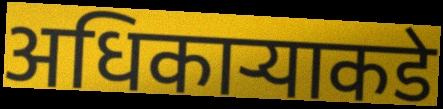
अधिकार्‍याकडे